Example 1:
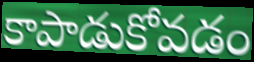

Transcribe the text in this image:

కాపాడుకోవడం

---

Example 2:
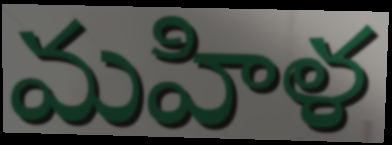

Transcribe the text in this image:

మహిళ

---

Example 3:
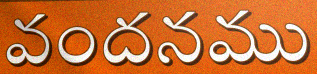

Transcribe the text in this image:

వందనము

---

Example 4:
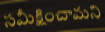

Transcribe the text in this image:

సమీక్షించామని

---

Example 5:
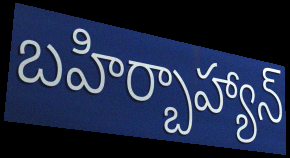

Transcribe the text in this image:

బహిర్బాహ్యాన్